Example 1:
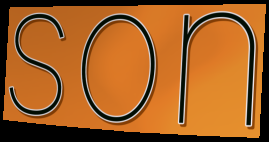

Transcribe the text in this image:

son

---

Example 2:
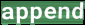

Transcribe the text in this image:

append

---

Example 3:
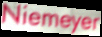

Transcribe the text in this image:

Niemeyer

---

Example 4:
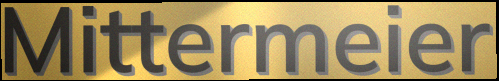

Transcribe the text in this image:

Mittermeier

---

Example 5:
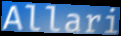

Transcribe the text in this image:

Allari